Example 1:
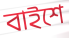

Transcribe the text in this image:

বাইশে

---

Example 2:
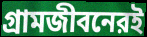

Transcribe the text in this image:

গ্রামজীবনেরই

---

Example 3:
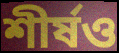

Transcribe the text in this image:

শীর্ষও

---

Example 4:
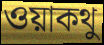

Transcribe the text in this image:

ওয়াকথু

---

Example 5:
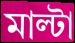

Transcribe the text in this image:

মাল্টা